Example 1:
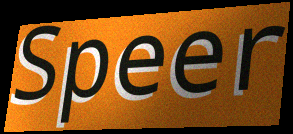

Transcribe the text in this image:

Speer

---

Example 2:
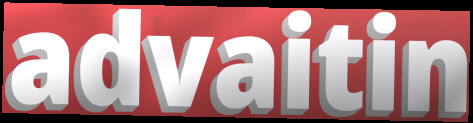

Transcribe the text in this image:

advaitin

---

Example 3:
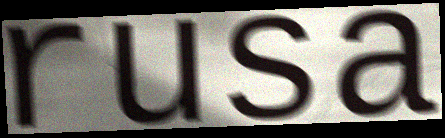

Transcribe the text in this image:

rusa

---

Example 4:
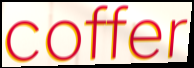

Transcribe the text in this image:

coffer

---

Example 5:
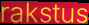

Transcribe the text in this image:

rakstus